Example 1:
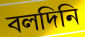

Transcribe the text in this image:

বলদিনি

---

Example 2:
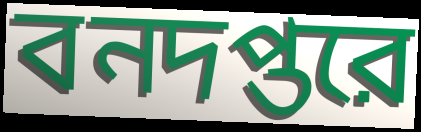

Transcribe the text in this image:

বনদপ্তরে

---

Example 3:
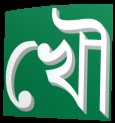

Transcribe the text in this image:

খৌ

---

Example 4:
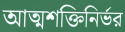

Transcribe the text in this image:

আত্মশক্তিনির্ভর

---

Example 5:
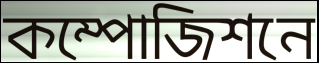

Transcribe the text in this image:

কম্পোজিশনে